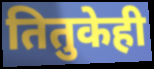
तितुकेही